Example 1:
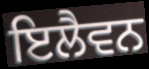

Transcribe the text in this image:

ਇਲੈਵਨ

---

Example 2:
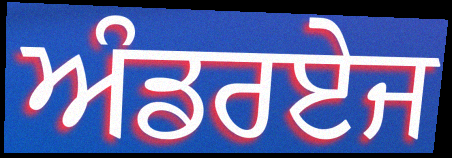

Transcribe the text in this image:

ਅੰਡਰਏਜ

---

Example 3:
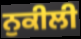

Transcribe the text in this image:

ਨੁਕੀਲੀ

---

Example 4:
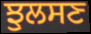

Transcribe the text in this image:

ਝੁਲਸਣ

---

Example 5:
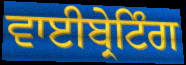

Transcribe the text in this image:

ਵਾਈਬ੍ਰੇਟਿੰਗ